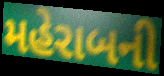
મહેરાબની